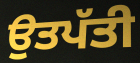
ਉਤਪੱਤੀ